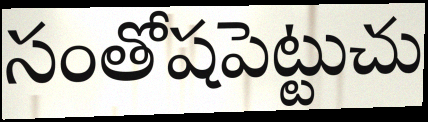
సంతోషపెట్టుచు